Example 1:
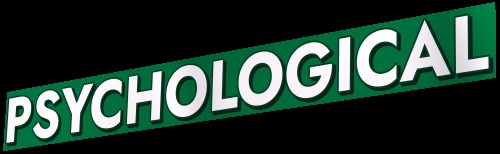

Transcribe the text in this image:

PSYCHOLOGICAL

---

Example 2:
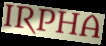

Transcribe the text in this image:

IRPHA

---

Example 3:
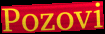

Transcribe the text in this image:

Pozovi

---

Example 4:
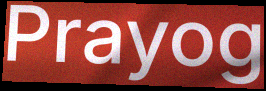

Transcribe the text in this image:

Prayog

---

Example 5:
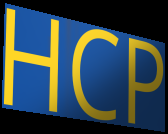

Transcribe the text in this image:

HCP